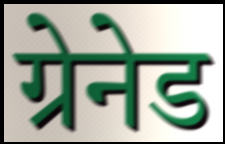
ग्रेनेड